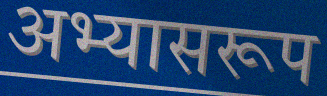
अभ्यासरूप